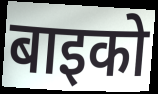
बाइको